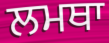
ਲਮਥਾ